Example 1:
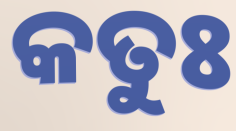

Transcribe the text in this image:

କତୁଃ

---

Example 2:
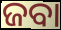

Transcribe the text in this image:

ଜବା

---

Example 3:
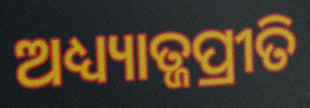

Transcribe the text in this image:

ଅଧ୍ୟ୍ୟାତ୍ଜପ୍ରୀତି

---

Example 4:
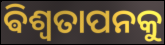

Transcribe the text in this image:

ଵିଶ୍ଵତାପନକୁ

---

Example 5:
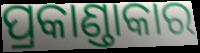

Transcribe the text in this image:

ପ୍ରକାଣ୍ଡାକାର